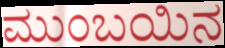
ಮುಂಬಯಿನ